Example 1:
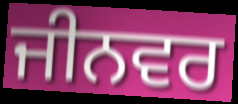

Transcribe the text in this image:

ਜੀਨਵਰ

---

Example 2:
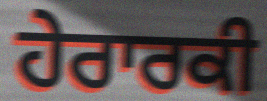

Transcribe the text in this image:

ਹੇਰਾਰਕੀ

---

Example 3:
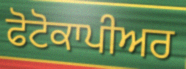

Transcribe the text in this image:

ਫੋਟੋਕਾਪੀਅਰ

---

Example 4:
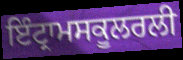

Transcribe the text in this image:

ਇੰਟ੍ਰਾਮਸਕੂਲਰਲੀ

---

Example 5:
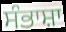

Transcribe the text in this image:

ਸੰਭਾਸ਼ਾ